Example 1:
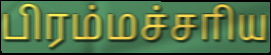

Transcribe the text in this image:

பிரம்மச்சரிய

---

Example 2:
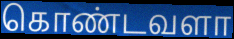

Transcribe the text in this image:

கொண்டவளா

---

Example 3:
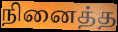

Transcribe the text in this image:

நினைத்த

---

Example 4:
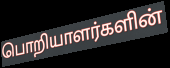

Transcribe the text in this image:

பொறியாளர்களின்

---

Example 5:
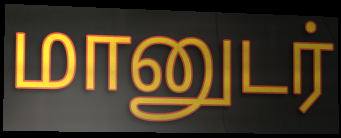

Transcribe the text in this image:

மானுடர்